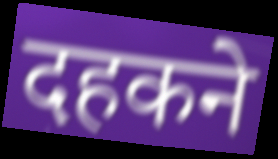
दहकने